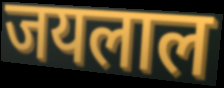
जयलाल